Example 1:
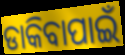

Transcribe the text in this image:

ଡାକିବାପାଇଁ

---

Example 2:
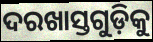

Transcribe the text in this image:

ଦରଖାସ୍ତଗୁଡ଼ିକୁ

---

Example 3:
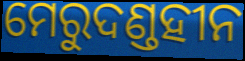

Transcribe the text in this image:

ମେରୁଦଣ୍ଡହୀନ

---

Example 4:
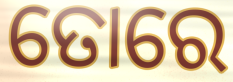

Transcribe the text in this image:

ତୋରେ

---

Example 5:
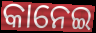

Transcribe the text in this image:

କାନେଇ